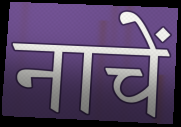
नाचें